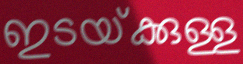
ഇടയ്‌ക്കുള്ള